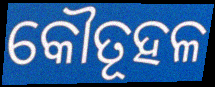
କୌତୂହଳ